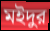
মইদুর